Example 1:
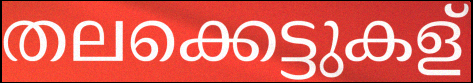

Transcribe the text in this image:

തലക്കെട്ടുകള്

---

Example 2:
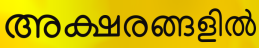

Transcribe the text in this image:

അക്ഷരങ്ങളിൽ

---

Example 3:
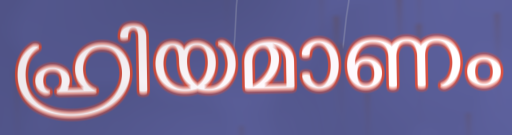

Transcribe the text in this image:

ഹ്രിയമാണം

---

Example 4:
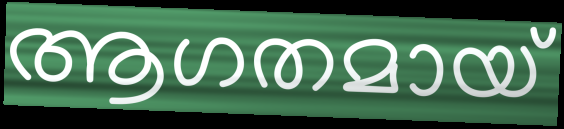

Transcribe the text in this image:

ആഗതമായ്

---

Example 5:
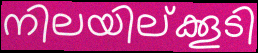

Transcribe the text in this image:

നിലയില്ക്കൂടി